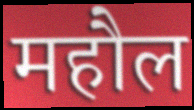
महौल